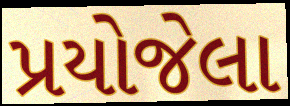
પ્રયોજેલા